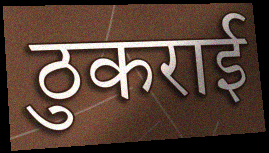
ठुकराई